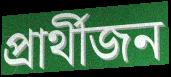
প্ৰাৰ্থীজন